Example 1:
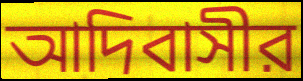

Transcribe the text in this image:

আদিবাসীর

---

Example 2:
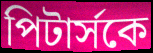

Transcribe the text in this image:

পিটার্সকে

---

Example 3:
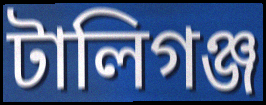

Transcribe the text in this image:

টালিগঞ্জ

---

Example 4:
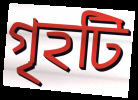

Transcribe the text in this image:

গৃহটি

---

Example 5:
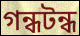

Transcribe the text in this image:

গন্ধটন্ধ